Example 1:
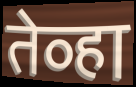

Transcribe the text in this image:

तेव्हा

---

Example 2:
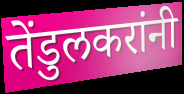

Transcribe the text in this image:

तेंडुलकरांनी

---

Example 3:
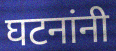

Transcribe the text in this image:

घटनांनी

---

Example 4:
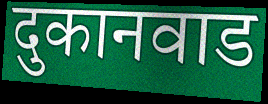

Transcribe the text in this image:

दुकानवाड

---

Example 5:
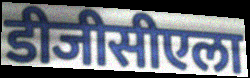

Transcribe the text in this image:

डीजीसीएला